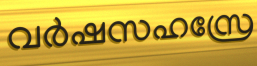
വർഷസഹസ്രേ